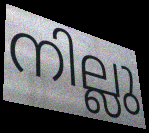
നില്ലു